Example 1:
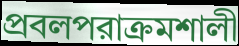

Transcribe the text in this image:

প্রবলপরাক্রমশালী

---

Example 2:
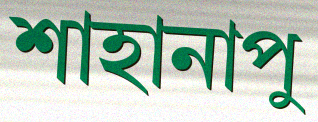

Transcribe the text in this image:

শাহানাপু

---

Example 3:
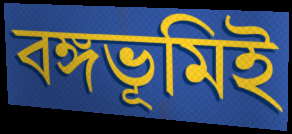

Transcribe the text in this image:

বঙ্গভূমিই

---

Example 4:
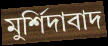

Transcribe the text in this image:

মুর্শিদাবাদ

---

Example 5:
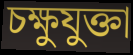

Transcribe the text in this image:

চক্ষুযুক্তা